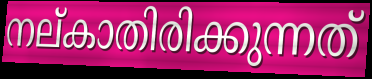
നല്കാതിരിക്കുന്നത്